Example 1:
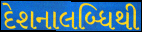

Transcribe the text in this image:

દેશનાલબ્ધિથી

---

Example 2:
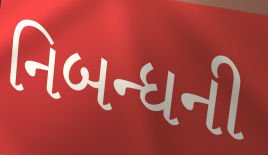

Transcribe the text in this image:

નિબન્ધની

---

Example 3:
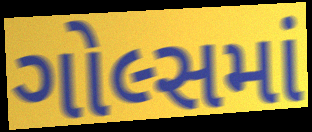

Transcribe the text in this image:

ગોલ્સમાં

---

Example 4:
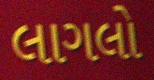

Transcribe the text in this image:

લાગલો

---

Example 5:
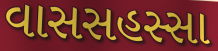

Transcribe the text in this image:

વાસસહસ્સા